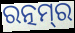
ରତ୍ନମ୍‌ର